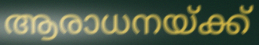
ആരാധനയ്ക്ക്